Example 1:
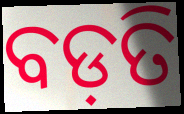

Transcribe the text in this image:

ବଡ଼ତି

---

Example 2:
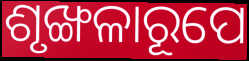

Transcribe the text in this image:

ଶୃଙ୍ଖଳାରୂପେ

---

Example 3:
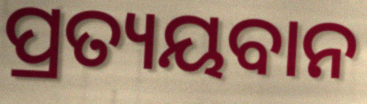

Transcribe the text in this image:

ପ୍ରତ୍ୟୟବାନ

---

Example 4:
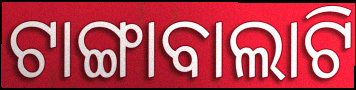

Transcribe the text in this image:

ଟାଙ୍ଗାବାଲାଟି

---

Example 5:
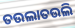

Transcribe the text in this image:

ତଉଲାତଉଲି